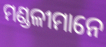
ମଣ୍ଡଳୀମାନେ